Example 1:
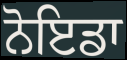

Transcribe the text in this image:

ਨੋਇਡਾ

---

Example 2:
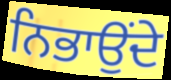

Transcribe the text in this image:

ਨਿਭਾਉਂਦੇ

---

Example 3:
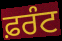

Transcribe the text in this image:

ਫ਼ਰੰਟ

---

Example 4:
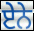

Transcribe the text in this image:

ਏੇਨੇ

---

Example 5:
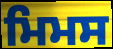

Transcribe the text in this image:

ਮਿਮਸ